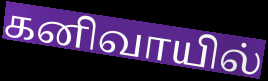
கனிவாயில்